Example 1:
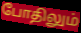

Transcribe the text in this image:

போதிலும்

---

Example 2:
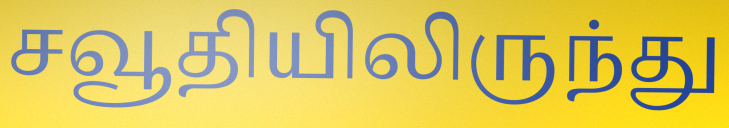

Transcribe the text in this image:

சவூதியிலிருந்து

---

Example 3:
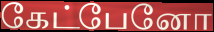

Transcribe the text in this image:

கேட்பேனோ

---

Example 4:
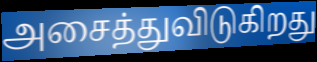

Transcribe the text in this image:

அசைத்துவிடுகிறது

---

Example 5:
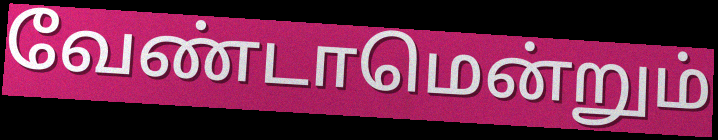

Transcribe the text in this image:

வேண்டாமென்றும்